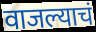
वाजल्याचं